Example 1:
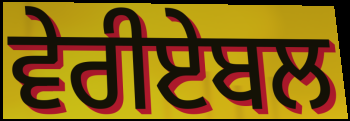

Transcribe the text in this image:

ਵੇਰੀਏਬਲ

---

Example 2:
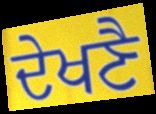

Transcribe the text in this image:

ਦੇਖਣੈ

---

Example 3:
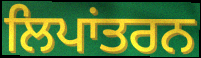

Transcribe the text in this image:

ਲਿਪਾਂਤਰਨ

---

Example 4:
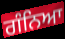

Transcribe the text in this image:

ਗੰਨਿਆ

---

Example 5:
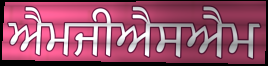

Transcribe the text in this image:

ਐਮਜੀਐਸਐਮ